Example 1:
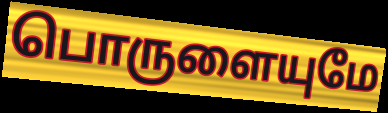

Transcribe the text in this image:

பொருளையுமே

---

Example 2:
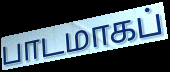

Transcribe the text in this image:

பாடமாகப்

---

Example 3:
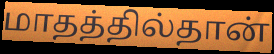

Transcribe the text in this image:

மாதத்தில்தான்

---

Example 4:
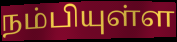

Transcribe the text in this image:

நம்பியுள்ள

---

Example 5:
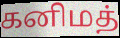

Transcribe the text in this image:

கனிமத்